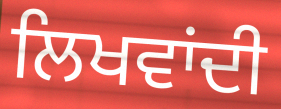
ਲਿਖਵਾਂਦੀ